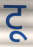
टू